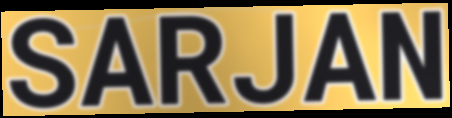
SARJAN